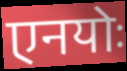
एनयोः